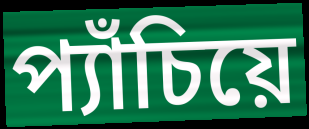
প্যাঁচিয়ে